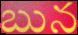
బున